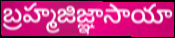
బ్రహ్మజిజ్ఞాసాయా